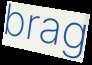
brag